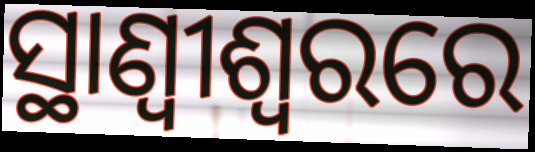
ସ୍ଥାଣ୍ୱୀଶ୍ୱରରେ